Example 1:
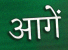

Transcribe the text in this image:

आगें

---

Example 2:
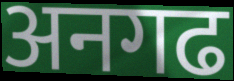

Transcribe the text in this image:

अनगढ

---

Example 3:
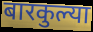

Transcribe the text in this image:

बारकुल्या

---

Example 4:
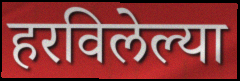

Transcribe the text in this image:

हरविलेल्या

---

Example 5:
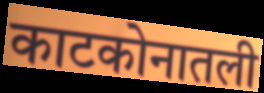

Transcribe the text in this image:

काटकोनातली